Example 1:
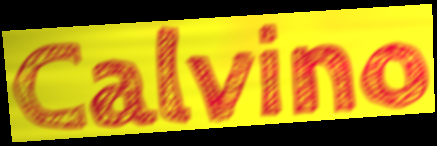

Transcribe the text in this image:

Calvino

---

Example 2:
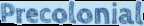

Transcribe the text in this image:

Precolonial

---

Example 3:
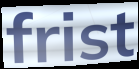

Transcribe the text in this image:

frist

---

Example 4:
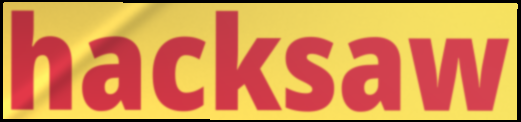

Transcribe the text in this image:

hacksaw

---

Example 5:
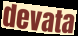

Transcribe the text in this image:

devata